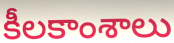
కీలకాంశాలు